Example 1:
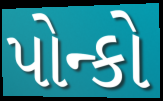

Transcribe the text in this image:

પોન્કો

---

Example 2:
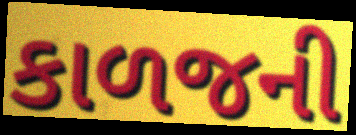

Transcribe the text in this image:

કાળજની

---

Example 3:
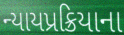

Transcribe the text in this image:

ન્યાયપ્રક્રિયાના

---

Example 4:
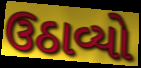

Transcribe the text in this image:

ઉઠાવ્યો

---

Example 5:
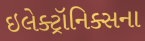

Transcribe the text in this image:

ઇલેક્ટ્રૉનિક્સના